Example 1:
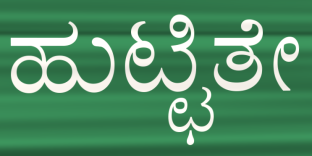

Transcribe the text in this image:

ಹುಟ್ಟಿತೇ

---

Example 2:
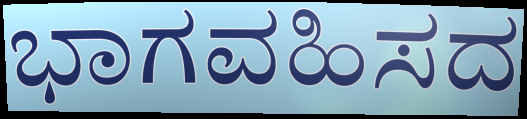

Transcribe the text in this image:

ಭಾಗವಹಿಸದ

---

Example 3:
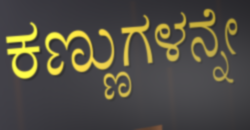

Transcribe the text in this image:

ಕಣ್ಣುಗಳನ್ನೇ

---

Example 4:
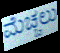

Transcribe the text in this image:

ಮೆಚ್ಚಲು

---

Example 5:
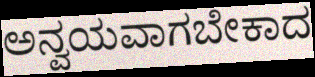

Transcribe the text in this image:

ಅನ್ವಯವಾಗಬೇಕಾದ